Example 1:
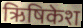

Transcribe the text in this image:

ऋिषिकेश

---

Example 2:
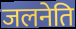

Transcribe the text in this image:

जलनेति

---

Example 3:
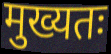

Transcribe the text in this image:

मुख्यतः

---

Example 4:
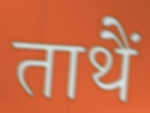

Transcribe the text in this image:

ताथैं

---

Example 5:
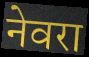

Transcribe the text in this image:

नेवरा